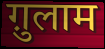
ग़ुलाम